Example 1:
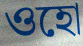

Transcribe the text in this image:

ওহো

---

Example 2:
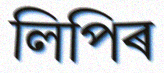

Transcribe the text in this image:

লিপিৰ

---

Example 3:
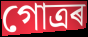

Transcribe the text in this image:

গোত্ৰৰ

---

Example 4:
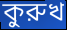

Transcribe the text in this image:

কুৰুখ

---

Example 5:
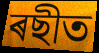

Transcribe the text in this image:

ৰছীত